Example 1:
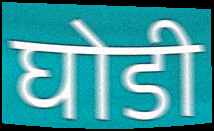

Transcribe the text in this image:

घोडी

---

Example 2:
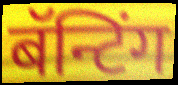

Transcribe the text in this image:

बॅन्टिंग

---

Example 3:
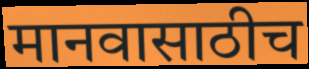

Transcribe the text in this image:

मानवासाठीच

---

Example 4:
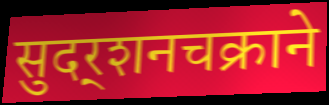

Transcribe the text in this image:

सुदर्शनचक्राने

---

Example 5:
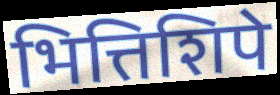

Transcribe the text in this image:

भित्तिशिपे